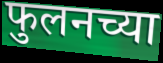
फुलनच्या